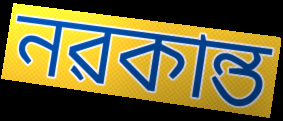
নৱকান্ত